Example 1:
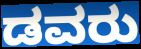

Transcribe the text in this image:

ಡವರು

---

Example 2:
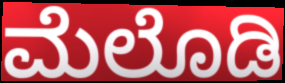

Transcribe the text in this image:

ಮೆಲೊಡಿ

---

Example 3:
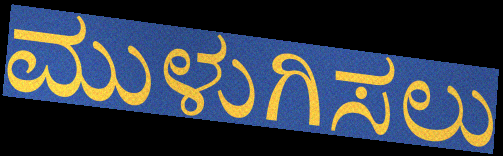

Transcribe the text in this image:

ಮುಳುಗಿಸಲು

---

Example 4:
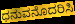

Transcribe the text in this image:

ಧನುವನೊದರಿಸಿ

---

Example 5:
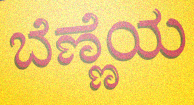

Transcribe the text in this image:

ಬೆಣ್ಣೆಯ